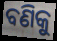
ବଣିକୁ